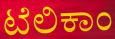
ಟೆಲಿಕಾಂ